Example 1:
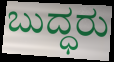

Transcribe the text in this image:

ಬುದ್ಧರು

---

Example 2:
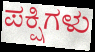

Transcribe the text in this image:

ಪಕ್ಷಿಗಳು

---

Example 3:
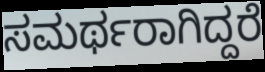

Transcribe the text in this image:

ಸಮರ್ಥರಾಗಿದ್ದರೆ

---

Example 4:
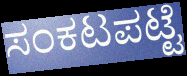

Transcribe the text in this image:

ಸಂಕಟಪಟ್ಟೆ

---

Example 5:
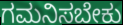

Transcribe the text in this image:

ಗಮನಿಸಬೇಕು